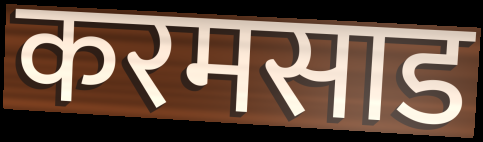
करमसाड